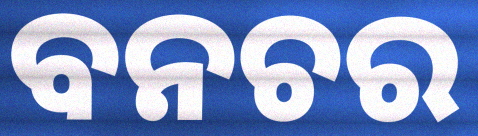
ବନଚର